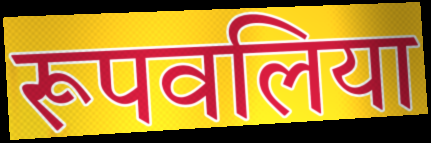
रूपवलिया